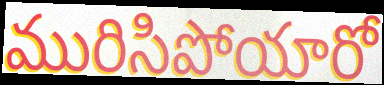
మురిసిపోయారో